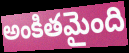
అంకితమైంది